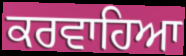
ਕਰਵਾਹਿਆ